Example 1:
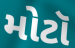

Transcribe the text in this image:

મોટૉ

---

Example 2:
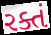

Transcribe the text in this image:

રક્તં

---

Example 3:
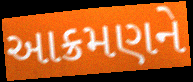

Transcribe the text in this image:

આક્રમણને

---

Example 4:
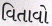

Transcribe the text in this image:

વિતાવો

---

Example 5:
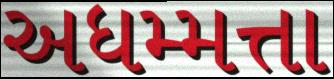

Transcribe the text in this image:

અધમ્મત્તા